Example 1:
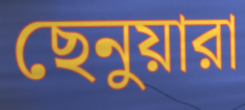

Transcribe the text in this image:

ছেনুয়ারা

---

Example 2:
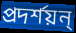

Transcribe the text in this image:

প্রদর্শয়ন্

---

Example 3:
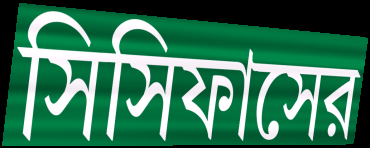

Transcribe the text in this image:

সিসিফাসের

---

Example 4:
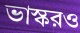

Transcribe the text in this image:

ভাস্করও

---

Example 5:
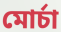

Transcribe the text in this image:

মোর্চা